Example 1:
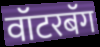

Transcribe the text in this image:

वॉटरबॅग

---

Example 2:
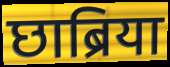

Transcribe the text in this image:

छाब्रिया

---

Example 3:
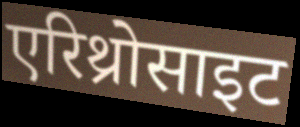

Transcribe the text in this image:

एरिथ्रोसाइट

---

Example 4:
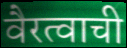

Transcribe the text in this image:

वैरत्वाची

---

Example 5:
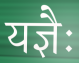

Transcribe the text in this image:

यज्ञैः